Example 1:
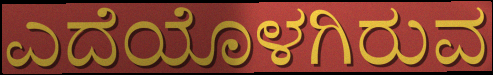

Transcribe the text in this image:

ಎದೆಯೊಳಗಿರುವ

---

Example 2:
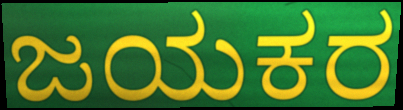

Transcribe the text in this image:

ಜಯಕರ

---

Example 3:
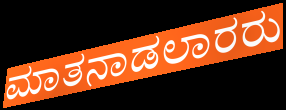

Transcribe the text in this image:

ಮಾತನಾಡಲಾರರು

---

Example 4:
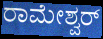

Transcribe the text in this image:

ರಾಮೇಶ್ವರ್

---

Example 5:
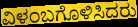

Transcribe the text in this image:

ವಿಳಂಬಗೊಳಿಸಿದರು